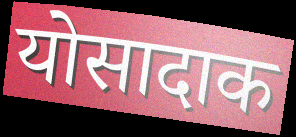
योसादाक